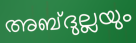
അബ്ദുല്ലയും